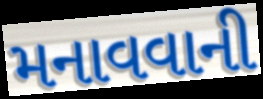
મનાવવાની